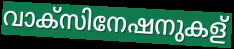
വാക്സിനേഷനുകള്